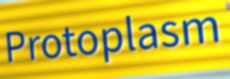
Protoplasm